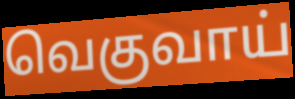
வெகுவாய்